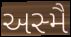
અસ્મૈ